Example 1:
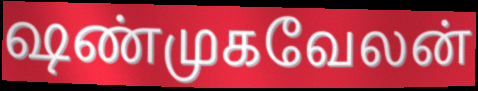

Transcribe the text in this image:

ஷண்முகவேலன்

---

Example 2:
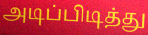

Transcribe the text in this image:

அடிப்பிடித்து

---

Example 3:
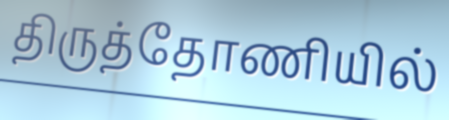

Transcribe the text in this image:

திருத்தோணியில்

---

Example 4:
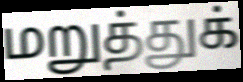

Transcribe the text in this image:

மறுத்துக்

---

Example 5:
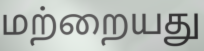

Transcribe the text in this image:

மற்றையது